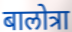
बालोत्रा